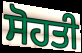
ਸੋਹਤੀ